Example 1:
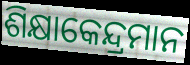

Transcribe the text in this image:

ଶିକ୍ଷାକେନ୍ଦ୍ରମାନ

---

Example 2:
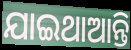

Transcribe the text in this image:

ଯାଇଥାଆନ୍ତି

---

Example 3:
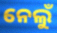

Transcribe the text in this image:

ନେଲୁଁ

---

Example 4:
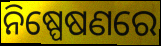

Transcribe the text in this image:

ନିଷ୍ପେଷଣରେ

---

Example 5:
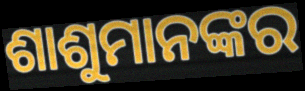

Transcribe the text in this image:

ଶାଶୁମାନଙ୍କର